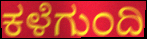
ಕಳೆಗುಂದಿ